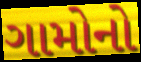
ગામોનો